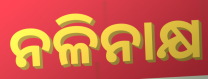
ନଳିନାକ୍ଷ